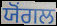
ਯੋਂਗਲ